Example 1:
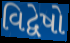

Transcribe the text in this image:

વિદ્વેષો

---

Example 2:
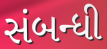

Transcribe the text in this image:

સંબન્ધી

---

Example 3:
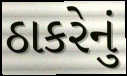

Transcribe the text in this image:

ઠાકરેનું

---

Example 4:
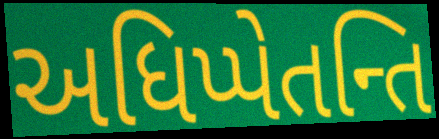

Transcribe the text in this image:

અધિપ્પેતન્તિ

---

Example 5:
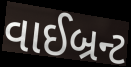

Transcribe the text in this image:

વાઈબ્રન્ટ